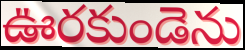
ఊరకుండెను